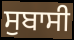
ਸੁਬਾਸੀ